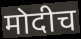
मोदीच